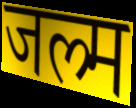
जल्म